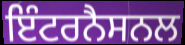
ਇੰਟਰਨੈਸਨਲ